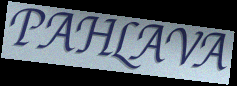
PAHLAVA